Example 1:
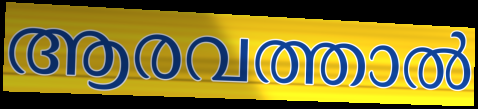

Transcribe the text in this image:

ആരവത്താൽ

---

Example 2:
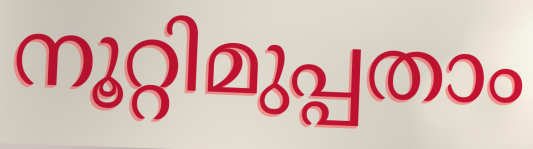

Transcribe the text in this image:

നൂറ്റിമുപ്പതാം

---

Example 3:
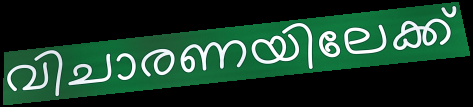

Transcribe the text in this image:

വിചാരണയിലേക്ക്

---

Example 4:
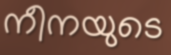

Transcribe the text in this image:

നീനയുടെ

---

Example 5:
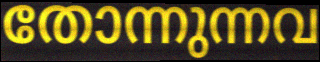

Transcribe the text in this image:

തോന്നുന്നവ